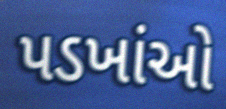
પડખાંઓ